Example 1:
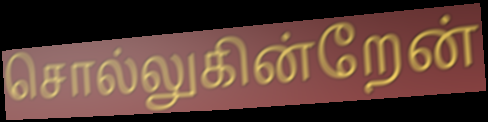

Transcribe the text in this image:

சொல்லுகின்றேன்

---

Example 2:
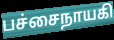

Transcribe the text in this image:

பச்சைநாயகி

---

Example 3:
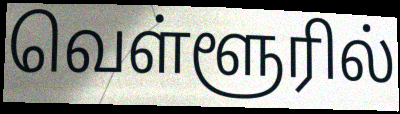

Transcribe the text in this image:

வெள்ளூரில்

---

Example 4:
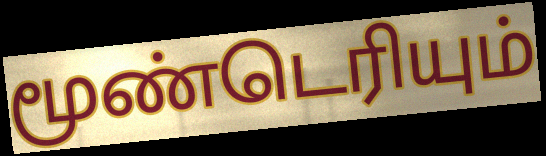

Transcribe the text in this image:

மூண்டெரியும்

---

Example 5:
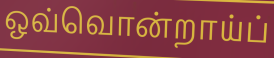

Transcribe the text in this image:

ஒவ்வொன்றாய்ப்